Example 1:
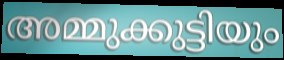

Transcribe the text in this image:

അമ്മുക്കുട്ടിയും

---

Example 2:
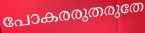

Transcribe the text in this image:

പോകരരുതരുതേ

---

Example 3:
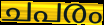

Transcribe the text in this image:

ചപരം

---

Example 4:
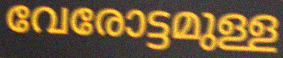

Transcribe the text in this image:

വേരോട്ടമുള്ള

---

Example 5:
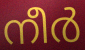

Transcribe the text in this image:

നീർ